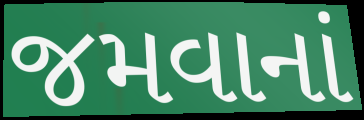
જમવાનાં